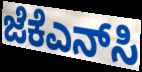
ಜೆಕೆಎನ್‌ಸಿ